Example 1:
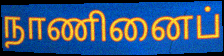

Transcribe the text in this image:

நாணினைப்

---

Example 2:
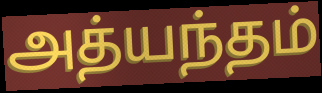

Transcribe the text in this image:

அத்யந்தம்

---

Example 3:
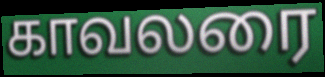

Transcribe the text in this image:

காவலரை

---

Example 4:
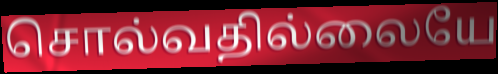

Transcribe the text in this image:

சொல்வதில்லையே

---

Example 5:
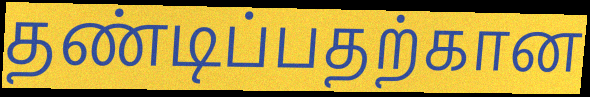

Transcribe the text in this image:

தண்டிப்பதற்கான